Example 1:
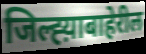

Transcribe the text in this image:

जिल्ह्य़ाबाहेरील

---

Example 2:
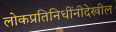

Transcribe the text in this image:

लोकप्रतिनिधींनीदेखील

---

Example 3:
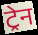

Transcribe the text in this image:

ट्रेन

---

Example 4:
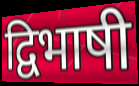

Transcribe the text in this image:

द्विभाषी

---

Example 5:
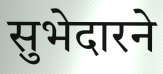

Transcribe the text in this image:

सुभेदारने